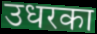
उधरका